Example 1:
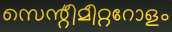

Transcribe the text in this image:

സെന്റീമീറ്ററോളം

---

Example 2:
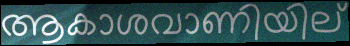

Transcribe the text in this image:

ആകാശവാണിയില്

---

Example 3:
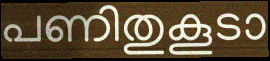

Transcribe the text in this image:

പണിതുകൂടാ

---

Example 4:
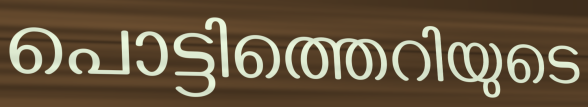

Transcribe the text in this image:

പൊട്ടിത്തെറിയുടെ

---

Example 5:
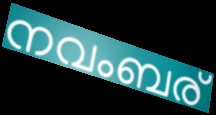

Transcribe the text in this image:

നവംബര്